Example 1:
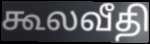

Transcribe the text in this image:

கூலவீதி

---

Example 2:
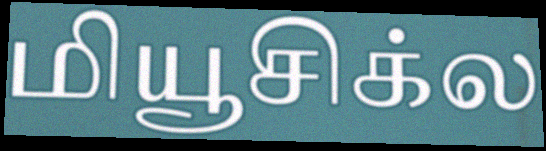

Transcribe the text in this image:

மியூசிக்ல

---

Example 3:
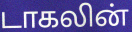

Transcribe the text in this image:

டாகலின்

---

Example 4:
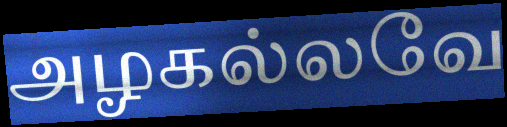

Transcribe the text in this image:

அழகல்லவே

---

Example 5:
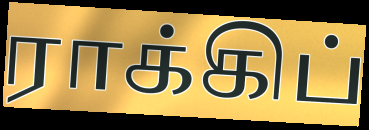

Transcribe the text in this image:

ராக்கிப்